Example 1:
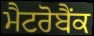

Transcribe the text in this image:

ਮੈਟਰੋਬੈਂਕ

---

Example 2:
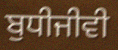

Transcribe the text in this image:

ਬੁਧੀਜੀਵੀ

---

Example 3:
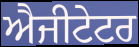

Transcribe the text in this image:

ਐਜੀਟੇਟਰ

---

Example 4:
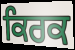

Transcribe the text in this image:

ਕਿਰਕ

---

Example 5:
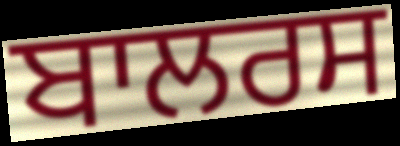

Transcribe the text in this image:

ਬਾਲਰਸ